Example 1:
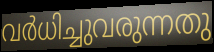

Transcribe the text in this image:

വർധിച്ചുവരുന്നതു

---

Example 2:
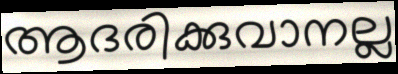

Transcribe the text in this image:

ആദരിക്കുവാനല്ല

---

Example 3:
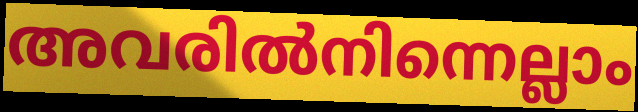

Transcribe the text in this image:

അവരിൽനിന്നെല്ലാം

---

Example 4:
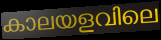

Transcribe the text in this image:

കാലയളവിലെ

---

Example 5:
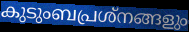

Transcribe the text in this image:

കുടുംബപ്രശ്നങ്ങളും